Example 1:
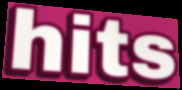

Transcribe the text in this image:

hits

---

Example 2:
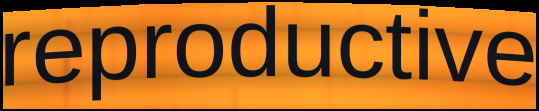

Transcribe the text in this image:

reproductive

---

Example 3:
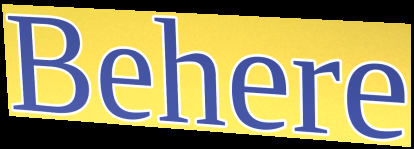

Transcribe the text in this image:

Behere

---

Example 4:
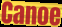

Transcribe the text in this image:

Canoe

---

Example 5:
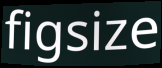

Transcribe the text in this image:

figsize